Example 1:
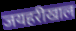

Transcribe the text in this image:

जयहरीखाल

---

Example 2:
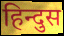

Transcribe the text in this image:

हिन्दुस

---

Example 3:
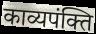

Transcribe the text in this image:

काव्यपंक्ति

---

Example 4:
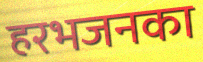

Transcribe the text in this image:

हरभजनका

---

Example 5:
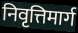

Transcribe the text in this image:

निवृत्तिमार्ग